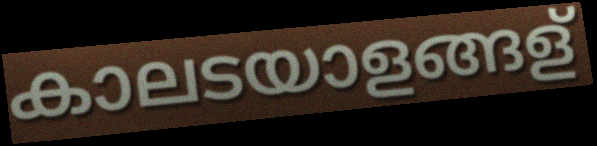
കാലടയാളങ്ങള്